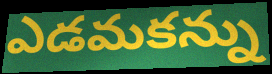
ఎడమకన్ను